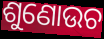
ଶୁଣୋଉଚ